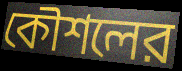
কৌশলের